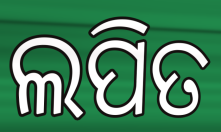
ଲପିତ